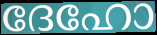
ദേഹോ